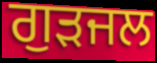
ਗੁੜਜਲ